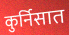
कुर्निसात